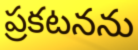
ప్రకటనను